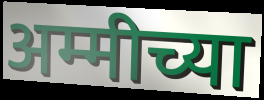
अम्मीच्या